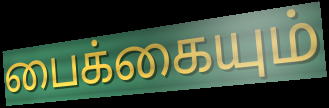
பைக்கையும்